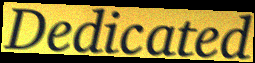
Dedicated